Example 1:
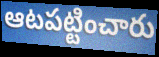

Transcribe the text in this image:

ఆటపట్టించారు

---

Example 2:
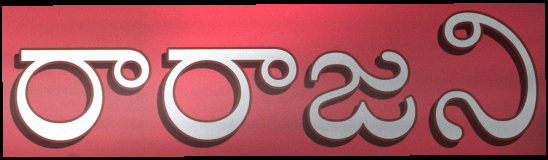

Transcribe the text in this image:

రారాజని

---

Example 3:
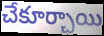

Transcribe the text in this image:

చేకూర్చాయి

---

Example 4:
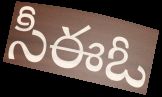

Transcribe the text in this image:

సీఈఓ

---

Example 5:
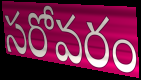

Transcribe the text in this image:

సరోవరం